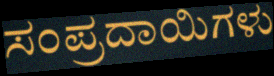
ಸಂಪ್ರದಾಯಿಗಳು